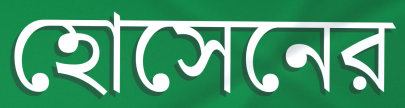
হোসেনের